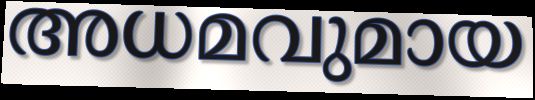
അധമവുമായ